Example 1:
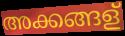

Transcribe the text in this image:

അക്കങ്ങള്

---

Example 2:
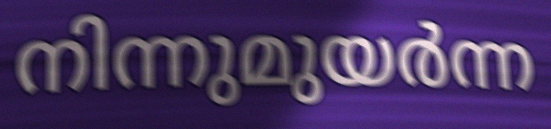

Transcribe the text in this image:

നിന്നുമുയർന്ന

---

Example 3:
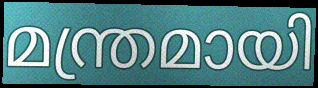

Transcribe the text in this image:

മന്ത്രമായി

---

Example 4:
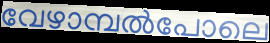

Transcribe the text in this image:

വേഴാമ്പൽപോലെ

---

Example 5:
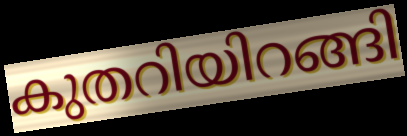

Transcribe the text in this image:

കുതറിയിറങ്ങി